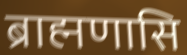
ब्राह्मणासि